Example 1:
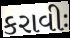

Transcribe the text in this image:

કરાવીઃ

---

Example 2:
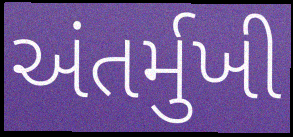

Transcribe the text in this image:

અંતર્મુખી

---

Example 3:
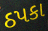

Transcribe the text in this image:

ઠપકા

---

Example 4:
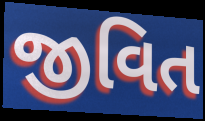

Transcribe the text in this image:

જીવિત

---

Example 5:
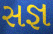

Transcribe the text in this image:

સજ્ઞ